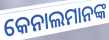
କେନାଲମାନଙ୍କ